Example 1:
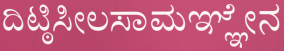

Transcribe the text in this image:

ದಿಟ್ಠಿಸೀಲಸಾಮಞ್ಞೇನ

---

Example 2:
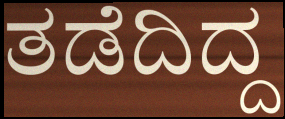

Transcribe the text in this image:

ತಡೆದಿದ್ದ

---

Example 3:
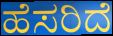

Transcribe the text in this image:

ಹೆಸರಿದೆ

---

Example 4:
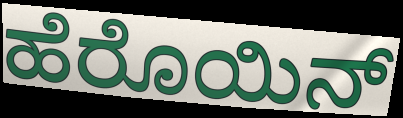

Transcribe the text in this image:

ಹೆರೊಯಿನ್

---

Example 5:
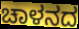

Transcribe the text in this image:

ಚಾಳನದ